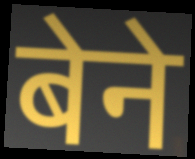
बेने